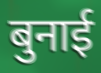
बुनाई